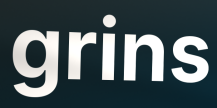
grins